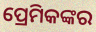
ପ୍ରେମିକଙ୍କର